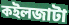
কইলজাটা